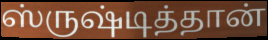
ஸ்ருஷ்டித்தான்